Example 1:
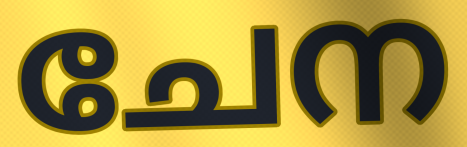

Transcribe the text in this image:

ചേന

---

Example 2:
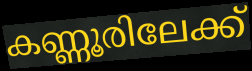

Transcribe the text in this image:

കണ്ണൂരിലേക്ക്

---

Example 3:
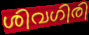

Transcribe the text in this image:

ശിവഗിരി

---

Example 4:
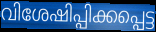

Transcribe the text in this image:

വിശേഷിപ്പിക്കപ്പെട്ട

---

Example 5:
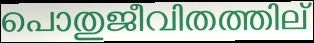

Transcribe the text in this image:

പൊതുജീവിതത്തില്